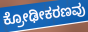
ಕ್ರೋಢೀಕರಣವು